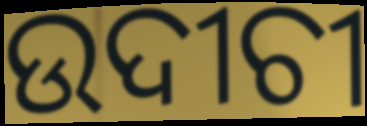
ଉଦୀଚୀ